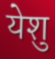
येशु